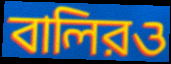
বালিরও